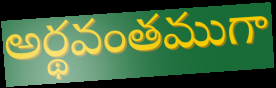
అర్థవంతముగా